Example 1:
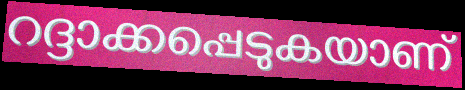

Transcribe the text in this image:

റദ്ദാക്കപ്പെടുകയാണ്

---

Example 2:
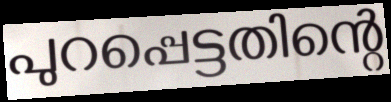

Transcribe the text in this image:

പുറപ്പെട്ടതിന്റെ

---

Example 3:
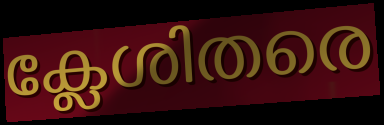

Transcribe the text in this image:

ക്ലേശിതരെ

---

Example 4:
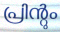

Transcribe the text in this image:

പ്രിന്റും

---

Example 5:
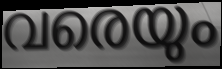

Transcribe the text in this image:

വരെയും